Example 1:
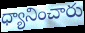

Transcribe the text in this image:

ధ్యానించారు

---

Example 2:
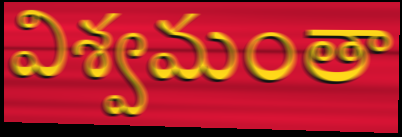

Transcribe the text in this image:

విశ్వమంతా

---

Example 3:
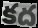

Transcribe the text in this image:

కద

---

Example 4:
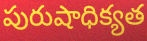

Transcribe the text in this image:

పురుషాధిక్యత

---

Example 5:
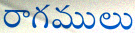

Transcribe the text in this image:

రాగములు